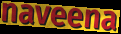
naveena